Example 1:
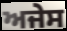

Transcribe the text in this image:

ਅਜੇਸ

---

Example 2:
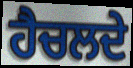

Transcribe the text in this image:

ਹੈਚਲਦੇ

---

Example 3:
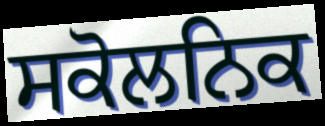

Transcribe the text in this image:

ਸਕੋਲਨਿਕ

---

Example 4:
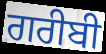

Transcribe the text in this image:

ਗਰੀਬੀ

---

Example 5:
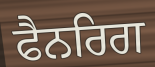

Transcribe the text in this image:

ਫੈਨਰਿਗ